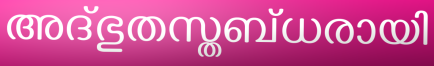
അദ്ഭുതസ്തബ്ധരായി